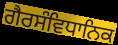
ਗੈਰਸੰਵਿਧਾਨਿਕ